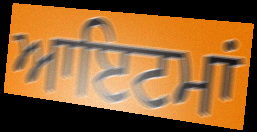
ਆਇਟਮਾਂ